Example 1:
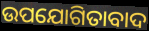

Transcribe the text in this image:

ଉପଯୋଗିତାବାଦ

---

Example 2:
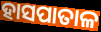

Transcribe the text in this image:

ହାସପାତାଳ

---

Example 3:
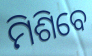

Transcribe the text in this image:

ମିଶିବେ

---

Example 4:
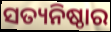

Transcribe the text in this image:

ସତ୍ୟନିଷ୍ଠାର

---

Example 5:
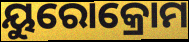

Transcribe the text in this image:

ୟୁରୋକ୍ରୋମ